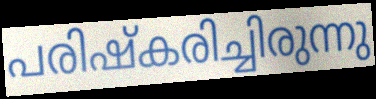
പരിഷ്കരിച്ചിരുന്നു